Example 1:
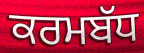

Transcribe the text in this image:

ਕਰਮਬੱਧ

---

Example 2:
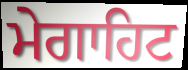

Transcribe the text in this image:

ਮੇਗਾਹਿਟ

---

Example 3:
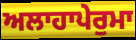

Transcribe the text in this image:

ਅਲਾਹਾਪੇਰੁਮਾ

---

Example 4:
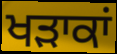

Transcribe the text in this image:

ਖੜਾਕਾਂ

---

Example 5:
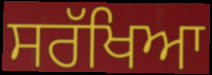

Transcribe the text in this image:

ਸਰੱਖਿਆ